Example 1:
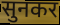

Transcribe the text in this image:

सुनकर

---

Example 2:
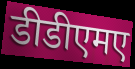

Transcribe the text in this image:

डीडीएमए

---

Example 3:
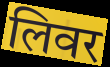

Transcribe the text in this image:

लिवर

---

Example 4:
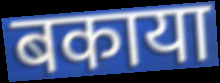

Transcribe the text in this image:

बकाया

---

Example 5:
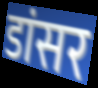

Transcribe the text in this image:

डांसर